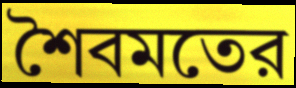
শৈবমতের